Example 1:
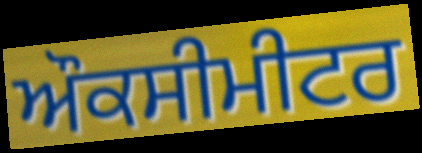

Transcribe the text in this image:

ਔਕਸੀਮੀਟਰ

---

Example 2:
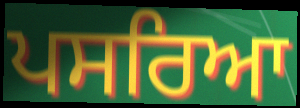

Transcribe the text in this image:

ਪਸਰਿਆ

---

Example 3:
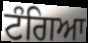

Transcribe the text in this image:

ਟੰਗਿਆ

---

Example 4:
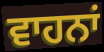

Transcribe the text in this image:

ਵਾਹਨਾਂ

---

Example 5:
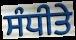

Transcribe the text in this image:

ਸੰਧੀਤੇ